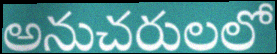
అనుచరులలో